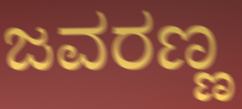
ಜವರಣ್ಣ